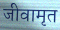
जीवामृत